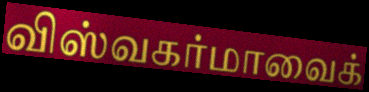
விஸ்வகர்மாவைக்